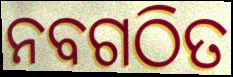
ନବଗଠିତ